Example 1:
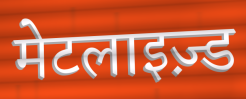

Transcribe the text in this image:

मेटलाइज़्ड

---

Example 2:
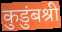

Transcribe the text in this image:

कुडुंबश्री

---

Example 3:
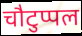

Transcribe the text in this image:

चौटुप्पल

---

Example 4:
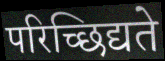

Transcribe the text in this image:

परिच्छिद्यते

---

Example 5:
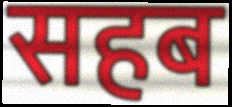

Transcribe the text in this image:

सहब